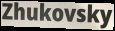
Zhukovsky